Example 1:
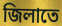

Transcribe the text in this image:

জিলাতে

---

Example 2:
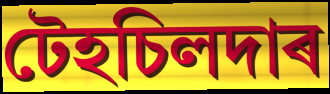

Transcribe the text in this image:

টেহচিলদাৰ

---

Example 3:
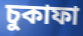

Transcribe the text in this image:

চুকাফা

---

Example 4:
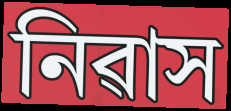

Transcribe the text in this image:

নিৱাস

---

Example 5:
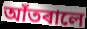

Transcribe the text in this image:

আঁতৰালে